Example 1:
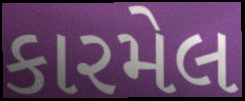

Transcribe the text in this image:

કારમેલ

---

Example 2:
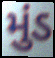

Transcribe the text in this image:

મુંડ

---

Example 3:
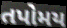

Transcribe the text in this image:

તપોમય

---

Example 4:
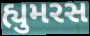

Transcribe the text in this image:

હ્યુમરસ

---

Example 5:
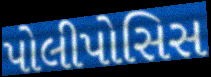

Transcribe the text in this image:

પોલીપોસિસ